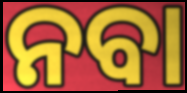
ନବା